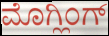
ಮೊಗ್ಲಿಂಗ್